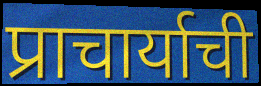
प्राचार्याची